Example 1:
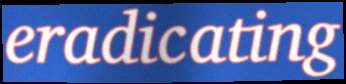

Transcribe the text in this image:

eradicating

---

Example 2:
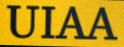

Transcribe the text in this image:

UIAA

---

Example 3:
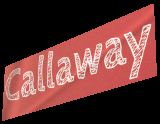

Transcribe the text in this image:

Callaway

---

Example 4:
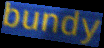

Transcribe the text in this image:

bundy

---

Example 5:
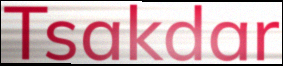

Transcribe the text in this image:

Tsakdar